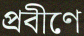
প্রবীণে